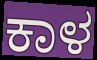
ಕಾಳ